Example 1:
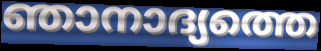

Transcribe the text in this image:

ഞാനാദ്യത്തെ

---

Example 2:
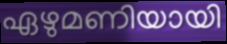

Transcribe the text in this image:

ഏഴുമണിയായി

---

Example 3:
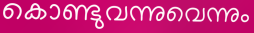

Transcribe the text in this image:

കൊണ്ടുവന്നുവെന്നും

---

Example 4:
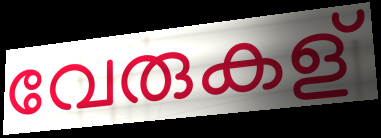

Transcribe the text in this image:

വേരുകള്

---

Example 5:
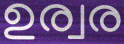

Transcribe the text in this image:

ഉര്വര